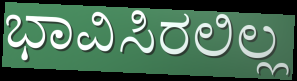
ಭಾವಿಸಿರಲಿಲ್ಲ